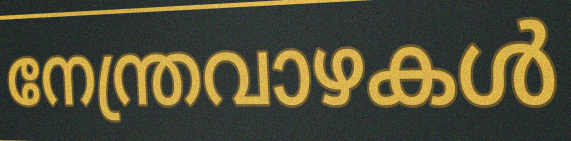
നേന്ത്രവാഴകൾ